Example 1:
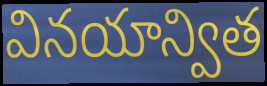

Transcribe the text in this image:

వినయాన్విత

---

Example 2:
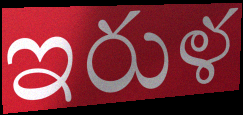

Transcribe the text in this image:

ఇరుళ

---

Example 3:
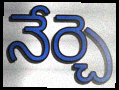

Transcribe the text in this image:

నేర్చె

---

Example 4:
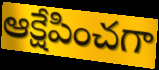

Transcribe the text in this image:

ఆక్షేపించగా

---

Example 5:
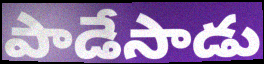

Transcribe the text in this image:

పాడేసాడు